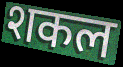
शकल